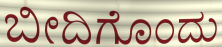
ಬೀದಿಗೊಂದು